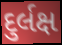
દુર્લક્ષ